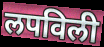
लपविली